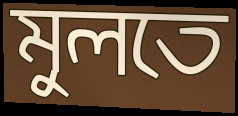
মুলতে